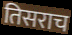
तिसराच